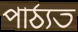
পাঠ্যত